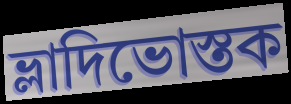
ভ্লাদিভোস্তক